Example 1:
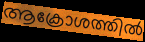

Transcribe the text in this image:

ആക്രോശത്തിൽ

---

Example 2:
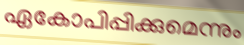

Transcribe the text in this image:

ഏകോപിപ്പിക്കുമെന്നും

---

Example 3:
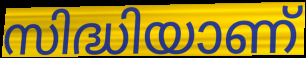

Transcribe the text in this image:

സിദ്ധിയാണ്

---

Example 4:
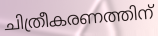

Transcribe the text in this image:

ചിത്രീകരണത്തിന്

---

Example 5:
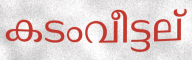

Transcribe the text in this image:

കടംവീട്ടല്